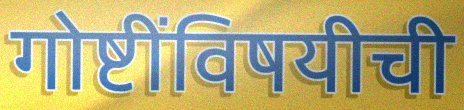
गोष्टींविषयीची